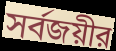
সর্বজয়ীর